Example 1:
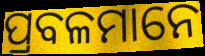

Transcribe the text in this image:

ପ୍ରବଳମାନେ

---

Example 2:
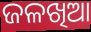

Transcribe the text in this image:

ଜଳଖିଆ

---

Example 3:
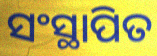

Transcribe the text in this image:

ସଂସ୍ଥାପିତ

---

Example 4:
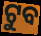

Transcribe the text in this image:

ଟୁବ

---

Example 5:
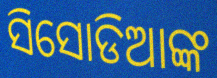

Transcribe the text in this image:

ସିସୋଡିଆଙ୍କ